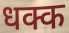
धक्क